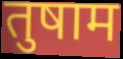
तुषाम